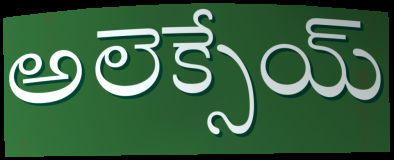
అలెక్సేయ్